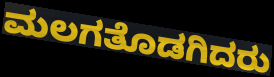
ಮಲಗತೊಡಗಿದರು